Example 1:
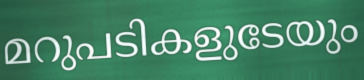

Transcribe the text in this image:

മറുപടികളുടേയും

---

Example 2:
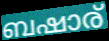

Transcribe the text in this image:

ബഷാര്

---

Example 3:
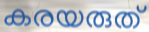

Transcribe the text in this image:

കരയരുത്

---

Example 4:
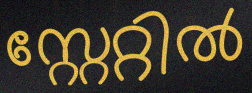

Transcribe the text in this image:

സ്റ്റേറ്റിൽ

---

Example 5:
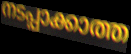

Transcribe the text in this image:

നടപ്പാക്കാത്ത